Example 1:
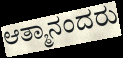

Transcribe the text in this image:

ಆತ್ಮಾನಂದರು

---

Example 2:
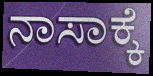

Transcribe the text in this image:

ನಾಸಾಕ್ಕೆ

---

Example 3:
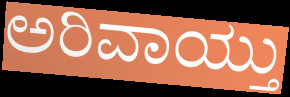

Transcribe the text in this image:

ಅರಿವಾಯ್ತು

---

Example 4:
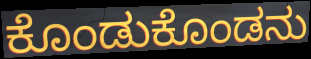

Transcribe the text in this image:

ಕೊಂಡುಕೊಂಡನು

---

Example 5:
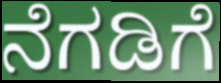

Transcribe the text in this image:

ನೆಗಡಿಗೆ